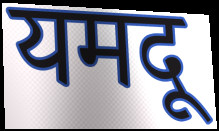
यमदू